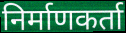
निर्माणकर्ता